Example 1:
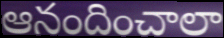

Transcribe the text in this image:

ఆనందించాలా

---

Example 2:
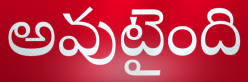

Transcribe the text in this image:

అవుటైంది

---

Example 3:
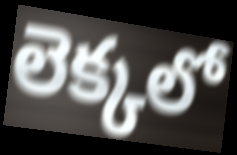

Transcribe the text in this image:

లెక్కలో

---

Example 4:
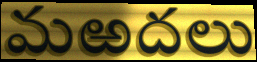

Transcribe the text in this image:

మఱదలు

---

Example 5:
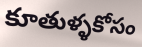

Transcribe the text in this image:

కూతుళ్ళకోసం